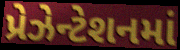
પ્રેઝેન્ટેશનમાં